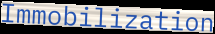
Immobilization